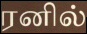
ரனில்